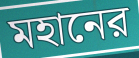
মহানের